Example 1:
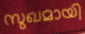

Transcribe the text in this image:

സുഖമായി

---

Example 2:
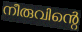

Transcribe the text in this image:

നീരുവിന്റെ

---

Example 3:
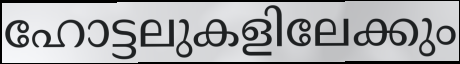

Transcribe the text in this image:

ഹോട്ടലുകളിലേക്കും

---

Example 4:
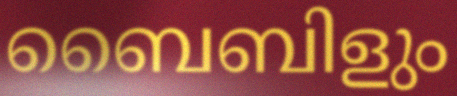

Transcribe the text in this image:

ബൈബിളും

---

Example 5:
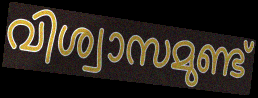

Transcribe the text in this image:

വിശ്വാസമുണ്ട്